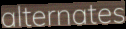
alternates